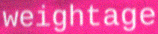
weightage